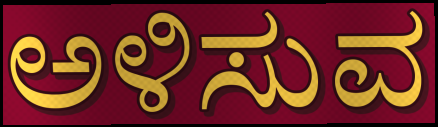
ಅಳಿಸುವ